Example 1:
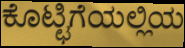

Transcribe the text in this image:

ಕೊಟ್ಟಿಗೆಯಲ್ಲಿಯ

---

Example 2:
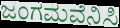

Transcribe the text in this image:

ಜಂಗಮವೆನಿಸಿ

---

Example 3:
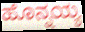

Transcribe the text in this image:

ಹೊನ್ನಯ್ಯ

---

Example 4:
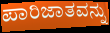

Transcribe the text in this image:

ಪಾರಿಜಾತವನ್ನು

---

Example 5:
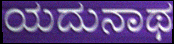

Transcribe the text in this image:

ಯದುನಾಥ